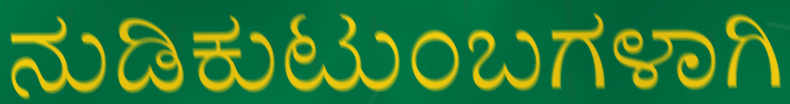
ನುಡಿಕುಟುಂಬಗಳಾಗಿ